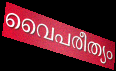
വൈപരീത്യം